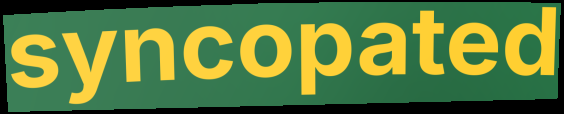
syncopated